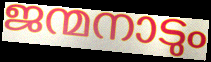
ജന്മനാടും